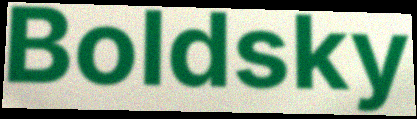
Boldsky